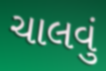
ચાલવું